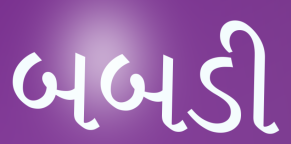
બબડી